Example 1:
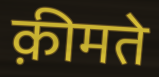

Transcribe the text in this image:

क़ीमते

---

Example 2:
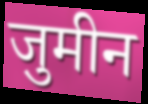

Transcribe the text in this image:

जुमीन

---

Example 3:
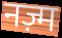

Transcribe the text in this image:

नज़्म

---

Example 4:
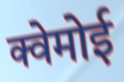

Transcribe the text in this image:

क्वेमोई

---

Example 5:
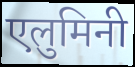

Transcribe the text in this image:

एलुमिनी